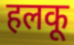
हलकू